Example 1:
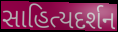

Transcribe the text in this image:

સાહિત્યદર્શન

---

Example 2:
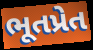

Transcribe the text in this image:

ભૂતપ્રેત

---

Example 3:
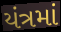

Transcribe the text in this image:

યંત્રમાં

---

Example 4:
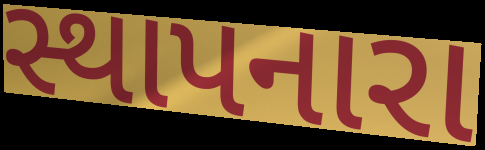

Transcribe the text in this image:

સ્થાપનારા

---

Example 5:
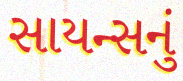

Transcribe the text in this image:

સાયન્સનું